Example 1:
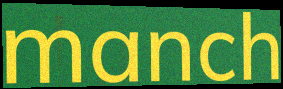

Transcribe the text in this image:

manch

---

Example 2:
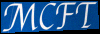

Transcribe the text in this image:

MCFT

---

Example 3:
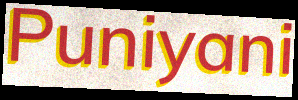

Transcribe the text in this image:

Puniyani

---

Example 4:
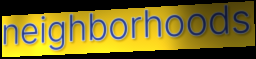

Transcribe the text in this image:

neighborhoods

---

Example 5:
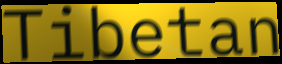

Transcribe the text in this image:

Tibetan